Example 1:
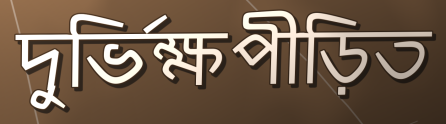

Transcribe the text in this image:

দুৰ্ভিক্ষপীড়িত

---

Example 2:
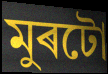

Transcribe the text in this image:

মুৰটো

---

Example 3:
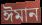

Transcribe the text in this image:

ঈমান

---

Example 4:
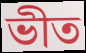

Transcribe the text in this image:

ভীত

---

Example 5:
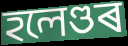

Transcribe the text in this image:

হলেণ্ডৰ